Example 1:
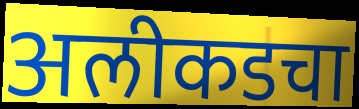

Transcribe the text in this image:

अलीकडचा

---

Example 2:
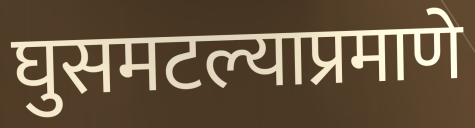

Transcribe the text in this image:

घुसमटल्याप्रमाणे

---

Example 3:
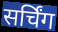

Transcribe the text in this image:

सर्चिंग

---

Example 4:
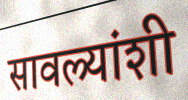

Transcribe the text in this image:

सावल्यांशी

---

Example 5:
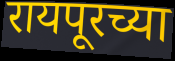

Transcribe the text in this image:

रायपूरच्या